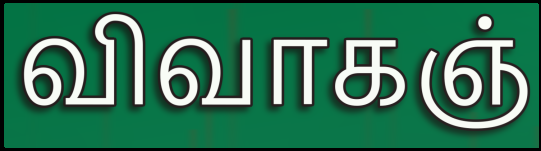
விவாகஞ்